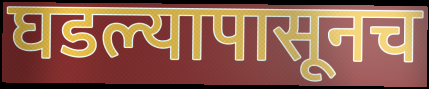
घडल्यापासूनच